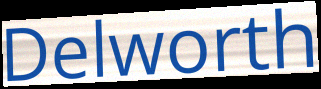
Delworth